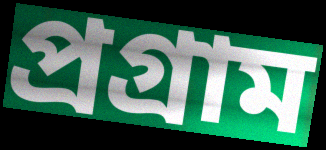
প্ৰগ্ৰাম